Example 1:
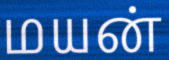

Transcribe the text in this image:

மயன்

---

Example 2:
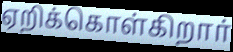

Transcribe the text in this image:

ஏறிக்கொள்கிறார்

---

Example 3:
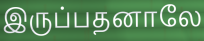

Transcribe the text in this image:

இருப்பதனாலே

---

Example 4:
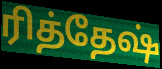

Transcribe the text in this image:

ரித்தேஷ்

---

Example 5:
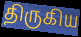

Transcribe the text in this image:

திருகிய